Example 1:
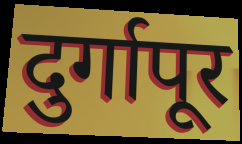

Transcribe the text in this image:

दुर्गापूर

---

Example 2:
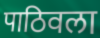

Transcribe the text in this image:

पाठिवला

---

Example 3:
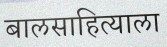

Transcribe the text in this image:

बालसाहित्याला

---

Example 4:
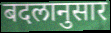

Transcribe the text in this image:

बदलानुसार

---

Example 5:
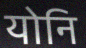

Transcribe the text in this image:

योनि